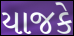
યાજકે